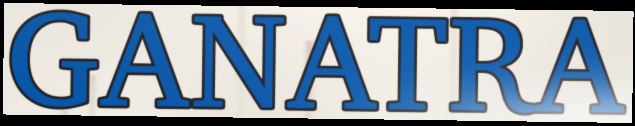
GANATRA